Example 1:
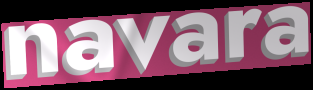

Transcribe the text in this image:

navara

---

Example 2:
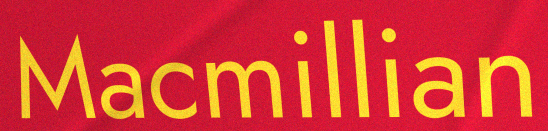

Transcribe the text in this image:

Macmillian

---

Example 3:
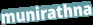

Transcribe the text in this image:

munirathna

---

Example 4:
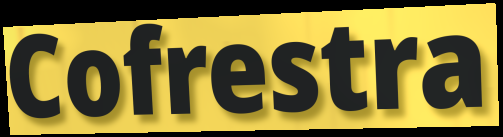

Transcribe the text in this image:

Cofrestra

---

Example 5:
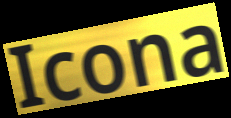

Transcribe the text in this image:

Icona